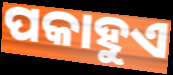
ପକାହୁଏ